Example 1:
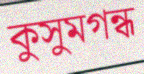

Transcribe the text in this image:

কুসুমগন্ধ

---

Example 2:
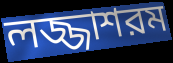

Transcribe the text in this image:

লজ্জাশরম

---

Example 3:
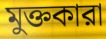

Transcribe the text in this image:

মুক্তকারা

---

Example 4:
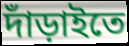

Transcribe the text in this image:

দাঁড়াইতে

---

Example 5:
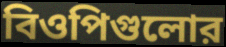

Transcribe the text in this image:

বিওপিগুলোর